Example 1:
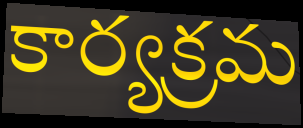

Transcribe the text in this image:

కార్యక్రమ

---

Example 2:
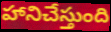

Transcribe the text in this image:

హానిచేస్తుంది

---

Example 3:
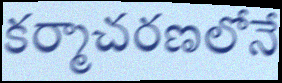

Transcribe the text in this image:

కర్మాచరణలోనే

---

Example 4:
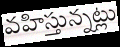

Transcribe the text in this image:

వహిస్తున్నట్లు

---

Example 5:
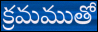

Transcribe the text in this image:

క్రమముతో